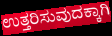
ಉತ್ತರಿಸುವುದಕ್ಕಾಗಿ